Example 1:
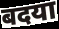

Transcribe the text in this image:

बदया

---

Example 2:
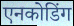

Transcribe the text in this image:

एनकोडिंग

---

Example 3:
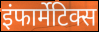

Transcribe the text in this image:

इंफार्मेटिक्स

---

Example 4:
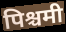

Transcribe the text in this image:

पिश्चमी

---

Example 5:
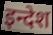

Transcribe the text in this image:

इन्देश